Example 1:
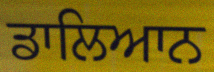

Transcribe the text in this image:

ਡਾਲਿਆਨ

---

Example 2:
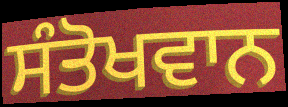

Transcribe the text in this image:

ਸੰਤੋਖਵਾਨ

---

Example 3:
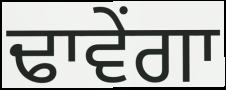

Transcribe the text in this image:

ਢਾਵੇਂਗਾ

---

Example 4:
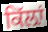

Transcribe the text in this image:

ਕਿੱਲ਼ਾਂ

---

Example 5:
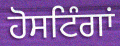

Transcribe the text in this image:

ਹੋਸਟਿੰਗਾਂ